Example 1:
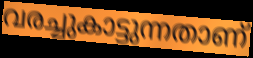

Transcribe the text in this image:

വരച്ചുകാട്ടുന്നതാണ്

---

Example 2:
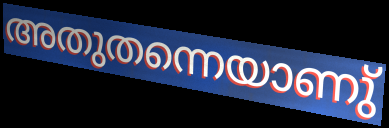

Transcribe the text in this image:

അതുതന്നെയാണു്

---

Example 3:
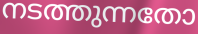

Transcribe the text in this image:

നടത്തുന്നതോ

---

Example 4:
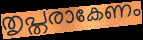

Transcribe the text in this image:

തൃപ്തരാകേണം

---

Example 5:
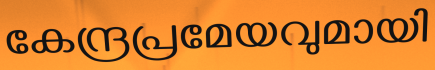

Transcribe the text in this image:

കേന്ദ്രപ്രമേയവുമായി